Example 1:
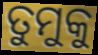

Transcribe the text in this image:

ତୁମୁକୁ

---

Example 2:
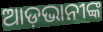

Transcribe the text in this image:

ଆଡ଼ଭାନୀଙ୍କ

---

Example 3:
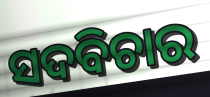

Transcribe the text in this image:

ସଦବିଚାର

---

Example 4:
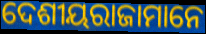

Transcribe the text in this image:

ଦେଶୀୟରାଜାମାନେ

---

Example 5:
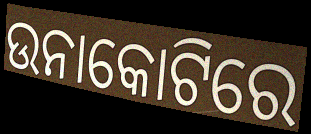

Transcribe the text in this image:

ଉନାକୋଟିରେ